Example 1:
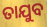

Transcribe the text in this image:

ତାଯୁବ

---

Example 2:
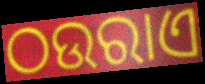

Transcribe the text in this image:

ଠଉରାଏ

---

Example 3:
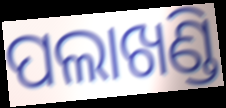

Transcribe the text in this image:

ପଲାଖଣ୍ଡି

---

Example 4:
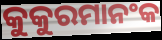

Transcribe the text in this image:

କୁକୁରମାନଂକ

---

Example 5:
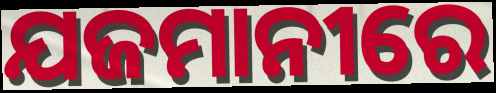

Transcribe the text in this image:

ଯଜମାନୀରେ